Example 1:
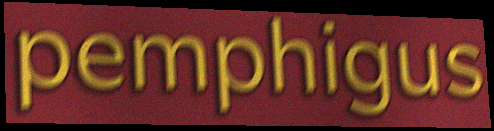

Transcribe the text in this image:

pemphigus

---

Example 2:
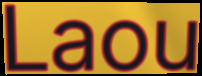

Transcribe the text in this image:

Laou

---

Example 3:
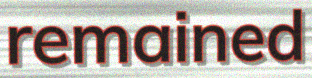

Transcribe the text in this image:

remained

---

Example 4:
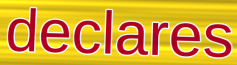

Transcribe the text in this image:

declares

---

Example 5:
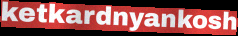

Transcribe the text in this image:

ketkardnyankosh